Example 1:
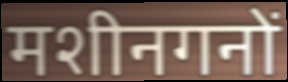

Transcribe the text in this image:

मशीनगनों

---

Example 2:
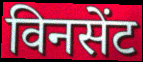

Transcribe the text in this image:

विनसेंट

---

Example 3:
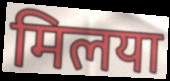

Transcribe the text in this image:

मिलया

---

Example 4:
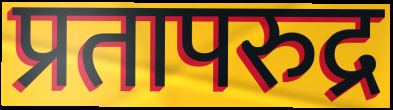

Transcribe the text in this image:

प्रतापरुद्र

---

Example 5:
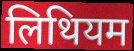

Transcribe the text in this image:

लिथियम